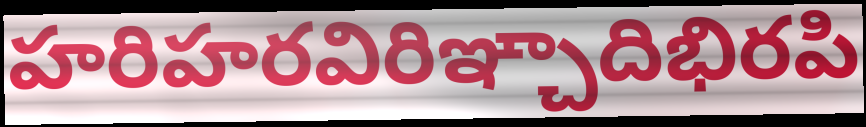
హరిహరవిరిఞ్చాదిభిరపి